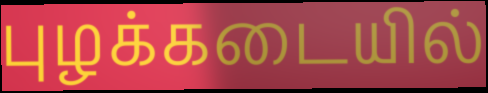
புழக்கடையில்